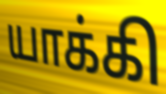
யாக்கி